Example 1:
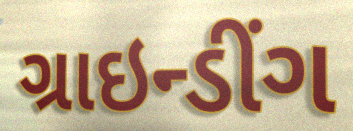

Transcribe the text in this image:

ગ્રાઇન્ડીંગ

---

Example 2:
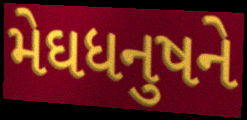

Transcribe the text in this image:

મેઘધનુષને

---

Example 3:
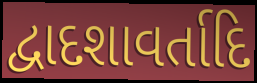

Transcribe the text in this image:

દ્વાદશાવર્તાદિ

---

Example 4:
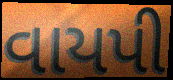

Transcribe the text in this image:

વાયપી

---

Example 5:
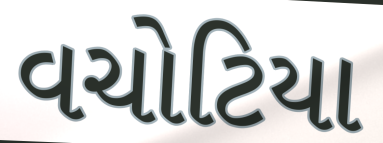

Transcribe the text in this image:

વચોટિયા